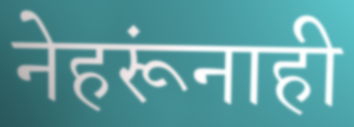
नेहरूंनाही